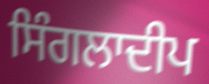
ਸਿੰਗਲਾਦੀਪ